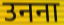
उनना